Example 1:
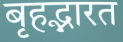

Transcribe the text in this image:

बृहद्भारत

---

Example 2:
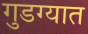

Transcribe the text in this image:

गुडग्यात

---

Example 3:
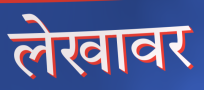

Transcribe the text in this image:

लेखावर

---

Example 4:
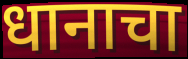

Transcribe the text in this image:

धानाचा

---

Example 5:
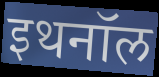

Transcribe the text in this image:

इथनॉल